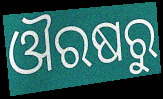
ଔରଷରୁ